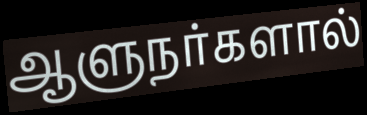
ஆளுநர்களால்